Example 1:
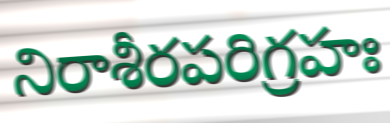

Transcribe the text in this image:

నిరాశీరపరిగ్రహః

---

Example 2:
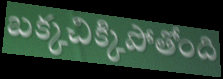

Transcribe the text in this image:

బక్కచిక్కిపోతోంది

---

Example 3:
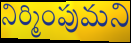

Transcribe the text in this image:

నిర్మింపుమని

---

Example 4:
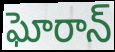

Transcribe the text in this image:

ఘోరాన్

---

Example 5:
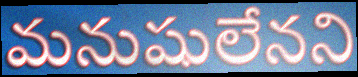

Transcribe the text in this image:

మనుషులేనని